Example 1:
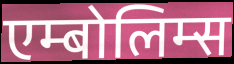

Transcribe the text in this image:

एम्बोलिम्स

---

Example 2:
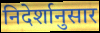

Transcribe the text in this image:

निदेर्शानुसार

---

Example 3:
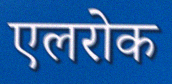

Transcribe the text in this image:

एलरोक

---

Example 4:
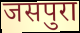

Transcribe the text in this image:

जसपुरा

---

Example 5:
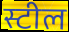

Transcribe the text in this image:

स्‍टील